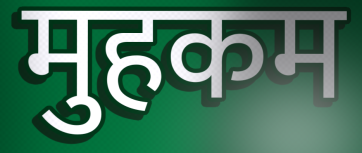
मुहकम